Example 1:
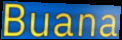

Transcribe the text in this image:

Buana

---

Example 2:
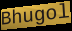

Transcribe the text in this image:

Bhugol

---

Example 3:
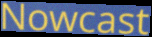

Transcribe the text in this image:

Nowcast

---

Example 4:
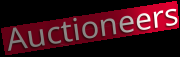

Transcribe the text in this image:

Auctioneers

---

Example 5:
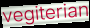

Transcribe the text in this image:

vegiterian